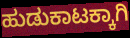
ಹುಡುಕಾಟಕ್ಕಾಗಿ